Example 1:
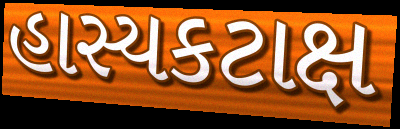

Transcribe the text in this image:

હાસ્યકટાક્ષ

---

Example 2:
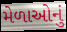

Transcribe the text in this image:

મેળાઓનું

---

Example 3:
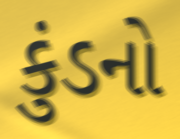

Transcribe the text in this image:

કુંડનો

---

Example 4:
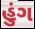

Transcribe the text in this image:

હુંગ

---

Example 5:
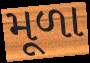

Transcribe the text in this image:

મૂળા